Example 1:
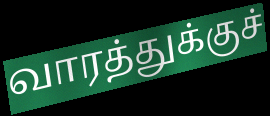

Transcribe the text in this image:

வாரத்துக்குச்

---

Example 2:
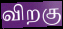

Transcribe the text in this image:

விறகு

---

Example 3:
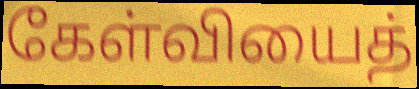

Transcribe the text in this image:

கேள்வியைத்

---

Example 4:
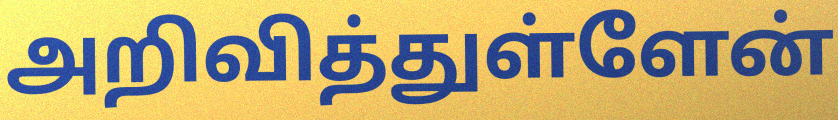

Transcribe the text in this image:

அறிவித்துள்ளேன்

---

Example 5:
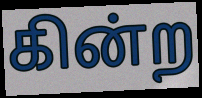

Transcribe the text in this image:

கின்ற